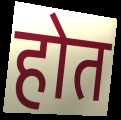
होत